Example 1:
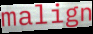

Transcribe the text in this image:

malign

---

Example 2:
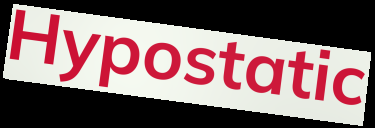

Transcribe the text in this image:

Hypostatic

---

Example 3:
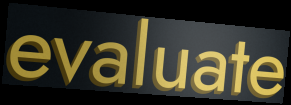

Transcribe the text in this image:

evaluate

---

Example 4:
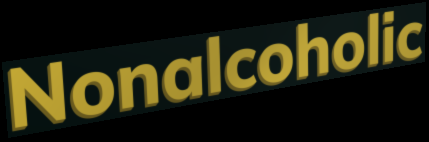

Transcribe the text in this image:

Nonalcoholic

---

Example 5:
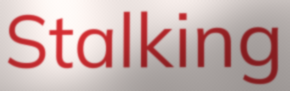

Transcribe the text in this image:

Stalking